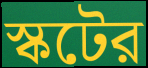
স্কটের